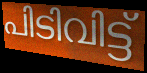
പിടിവിട്ട്